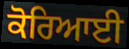
ਕੋਰਿਆਈ